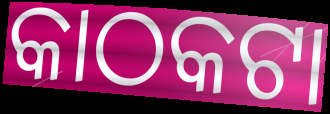
କାଠକଟା